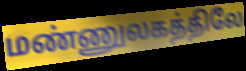
மண்ணுலகத்திலே